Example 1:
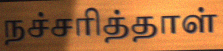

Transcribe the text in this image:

நச்சரித்தாள்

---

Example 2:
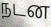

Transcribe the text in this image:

நடன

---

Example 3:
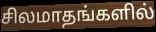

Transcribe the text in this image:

சிலமாதங்களில்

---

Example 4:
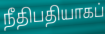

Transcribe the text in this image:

நீதிபதியாகப்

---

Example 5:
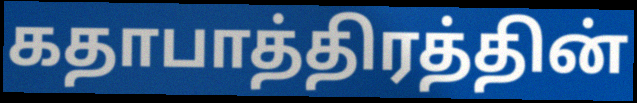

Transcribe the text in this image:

கதாபாத்திரத்தின்